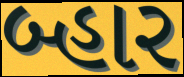
બ્હાર